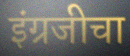
इंग्रजीचा